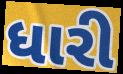
ધારી